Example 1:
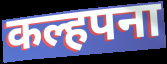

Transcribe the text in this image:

कल्हपना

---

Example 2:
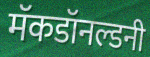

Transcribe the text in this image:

मॅकडॉनल्डनी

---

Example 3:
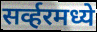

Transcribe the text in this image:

सर्व्हरमध्ये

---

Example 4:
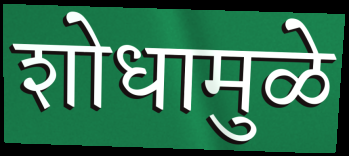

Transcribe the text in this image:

शोधामुळे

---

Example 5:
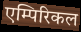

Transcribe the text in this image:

एम्पिरिकल